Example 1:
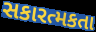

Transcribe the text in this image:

સકારત્મકતા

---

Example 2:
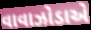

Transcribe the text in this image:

વાવાઝોડાએ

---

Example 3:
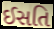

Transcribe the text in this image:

ઈસતિ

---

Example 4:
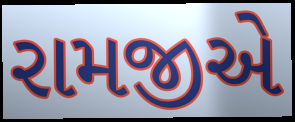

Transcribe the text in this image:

રામજીએ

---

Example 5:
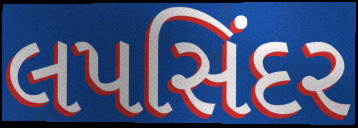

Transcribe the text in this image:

લપસિંદર